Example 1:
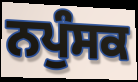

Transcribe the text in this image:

ਨਪੁੰਸਕ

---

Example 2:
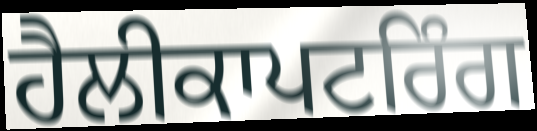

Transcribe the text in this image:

ਹੈਲੀਕਾਪਟਰਿੰਗ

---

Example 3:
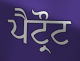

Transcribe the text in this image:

ਪੈਟ੍ਰੌਟ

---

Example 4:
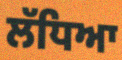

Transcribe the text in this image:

ਲੱਧਿਆ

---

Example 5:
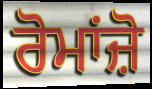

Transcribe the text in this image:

ਰੋਮਾਂਜ਼ੋ